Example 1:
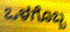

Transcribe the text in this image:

ಒಳಗೊಬ್ಬ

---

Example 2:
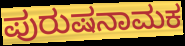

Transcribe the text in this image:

ಪುರುಷನಾಮಕ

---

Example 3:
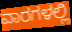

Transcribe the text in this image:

ವಾರಗಳಲ್ಲಿ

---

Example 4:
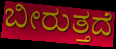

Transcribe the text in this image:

ಬೀರುತ್ತದೆ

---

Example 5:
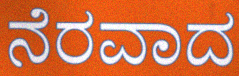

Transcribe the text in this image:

ನೆರವಾದ